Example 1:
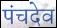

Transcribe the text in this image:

पंचदेव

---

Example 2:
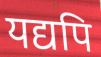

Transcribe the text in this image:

यद्यपि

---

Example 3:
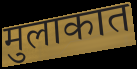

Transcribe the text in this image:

मुलाकात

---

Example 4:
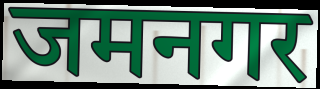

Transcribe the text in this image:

जमनगर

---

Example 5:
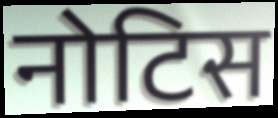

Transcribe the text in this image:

नोटिस